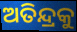
ଅତିନ୍ଦ୍ରକୁ